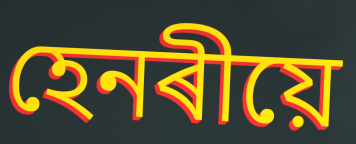
হেনৰীয়ে